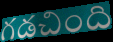
గడచింది